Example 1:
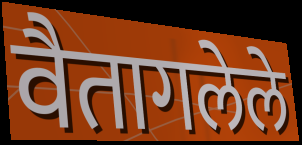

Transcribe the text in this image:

वैतागलेले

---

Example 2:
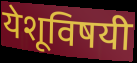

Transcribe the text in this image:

येशूविषयी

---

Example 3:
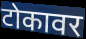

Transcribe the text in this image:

टोकावर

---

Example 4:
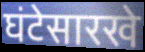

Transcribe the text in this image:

घंटेसारखे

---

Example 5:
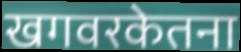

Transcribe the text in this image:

खगवरकेतना